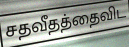
சதவீதத்தைவிட